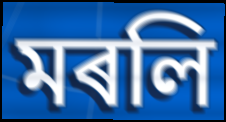
মৰলি